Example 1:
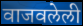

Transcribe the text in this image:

वाजवलेली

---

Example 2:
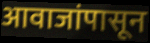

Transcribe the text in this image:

आवाजांपासून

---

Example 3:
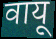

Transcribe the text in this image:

वायू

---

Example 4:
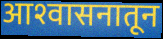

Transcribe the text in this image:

आश्वासनातून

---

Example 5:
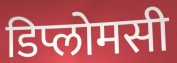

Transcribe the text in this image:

डिप्लोमसी